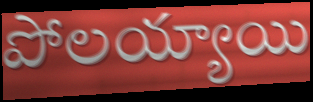
పోలయ్యాయి